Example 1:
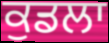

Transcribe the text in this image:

ਕੁਡਲਾ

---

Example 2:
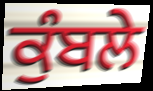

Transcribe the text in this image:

ਕੁੰਬਲੇ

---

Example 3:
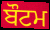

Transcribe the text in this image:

ਬੌਟਮ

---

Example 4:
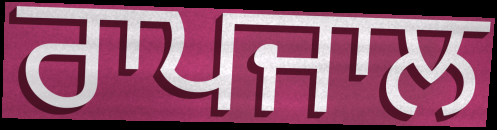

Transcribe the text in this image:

ਰਾਪਜਾਲ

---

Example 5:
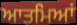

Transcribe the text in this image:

ਆਤਮਿਆਂ